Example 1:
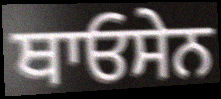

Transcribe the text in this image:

ਥਾਓਸੇਨ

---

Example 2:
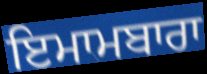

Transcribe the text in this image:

ਇਮਾਮਬਾਰਾ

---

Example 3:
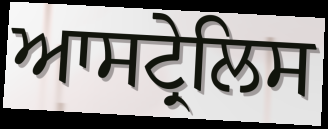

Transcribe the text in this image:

ਆਸਟ੍ਰੇਲਿਸ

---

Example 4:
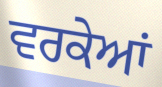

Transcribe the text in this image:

ਵਰਕੇਆਂ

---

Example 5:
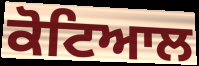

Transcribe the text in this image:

ਕੋਟਿਆਲ